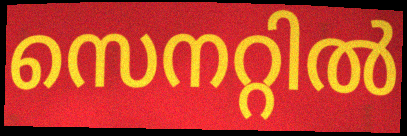
സെനറ്റിൽ